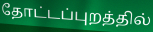
தோட்டப்புறத்தில்